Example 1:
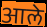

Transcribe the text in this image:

आले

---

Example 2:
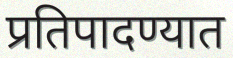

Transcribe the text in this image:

प्रतिपादण्यात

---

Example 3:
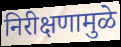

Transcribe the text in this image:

निरीक्षणामुळे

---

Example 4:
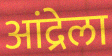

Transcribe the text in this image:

आंद्रेला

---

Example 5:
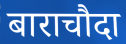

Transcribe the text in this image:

बाराचौदा